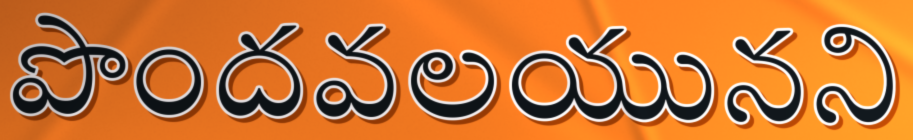
పొందవలయునని